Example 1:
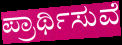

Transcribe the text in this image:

ಪ್ರಾರ್ಥಿಸುವೆ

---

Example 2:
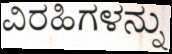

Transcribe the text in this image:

ವಿರಹಿಗಳನ್ನು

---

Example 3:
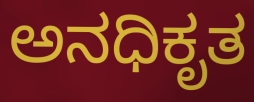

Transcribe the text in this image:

ಅನಧಿಕೃತ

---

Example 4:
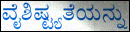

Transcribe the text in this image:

ವೈಶಿಷ್ಟ್ಯತೆಯನ್ನು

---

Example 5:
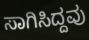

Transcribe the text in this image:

ಸಾಗಿಸಿದ್ದವು